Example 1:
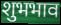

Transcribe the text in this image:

शुभभाव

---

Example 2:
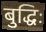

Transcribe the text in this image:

बुद्धिः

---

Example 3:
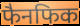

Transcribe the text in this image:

फैनफिक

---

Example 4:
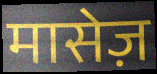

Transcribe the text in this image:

मासेज़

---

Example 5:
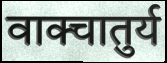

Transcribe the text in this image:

वाक्चातुर्य